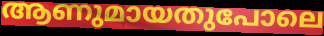
ആണുമായതുപോലെ